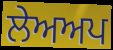
ਲੇਅਅਪ